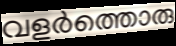
വളർത്തൊരു